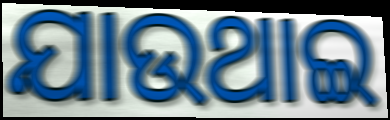
ଯାଉଥାଇ